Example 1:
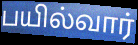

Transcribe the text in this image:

பயில்வார்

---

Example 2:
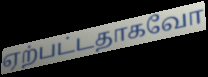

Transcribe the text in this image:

ஏற்பட்டதாகவோ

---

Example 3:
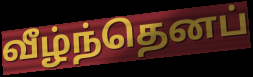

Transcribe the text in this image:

வீழ்ந்தெனப்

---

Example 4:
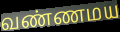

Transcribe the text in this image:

வண்ணமய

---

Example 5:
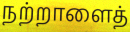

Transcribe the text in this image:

நற்றாளைத்